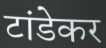
टांडेकर